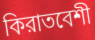
কিরাতবেশী